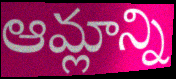
ఆమ్లాన్ని